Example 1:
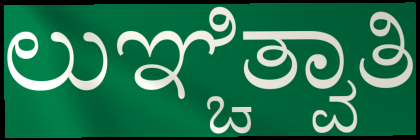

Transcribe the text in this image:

ಲುಞ್ಚಿತ್ವಾತಿ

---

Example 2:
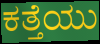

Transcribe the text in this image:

ಕತ್ತೆಯು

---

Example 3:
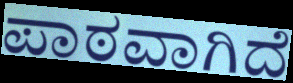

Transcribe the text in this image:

ಪಾಠವಾಗಿದೆ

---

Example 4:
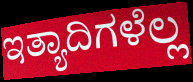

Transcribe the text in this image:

ಇತ್ಯಾದಿಗಳೆಲ್ಲ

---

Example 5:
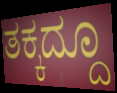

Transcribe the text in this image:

ತಕ್ಕದ್ದೂ